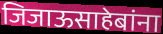
जिजाऊसाहेबांना